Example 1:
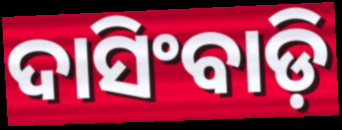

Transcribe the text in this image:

ଦାସିଂବାଡ଼ି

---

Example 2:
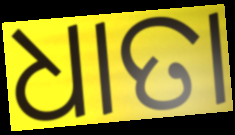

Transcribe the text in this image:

ଧାତା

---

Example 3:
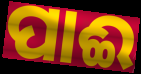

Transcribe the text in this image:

ପାଈ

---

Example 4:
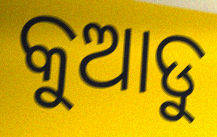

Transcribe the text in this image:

କୁଆଡୁ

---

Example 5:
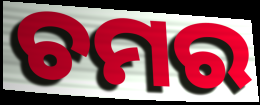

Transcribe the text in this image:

ଚମର